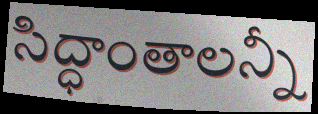
సిద్ధాంతాలన్నీ